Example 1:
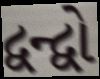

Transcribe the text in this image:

દ્વન્દ્વો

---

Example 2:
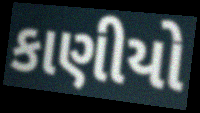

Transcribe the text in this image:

કાણીયો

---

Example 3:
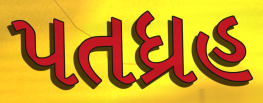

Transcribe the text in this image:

પતધ્રહ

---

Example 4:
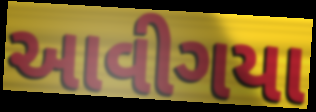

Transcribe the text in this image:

આવીગયા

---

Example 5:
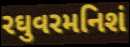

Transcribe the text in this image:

રઘુવરમનિશં